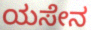
ಯಸೇನ